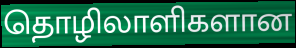
தொழிலாளிகளான